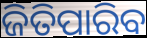
ଜିତିପାରିବ